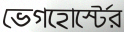
ভেগহোর্স্টের